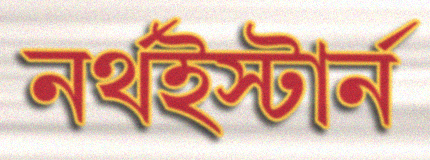
নর্থইস্টার্ন